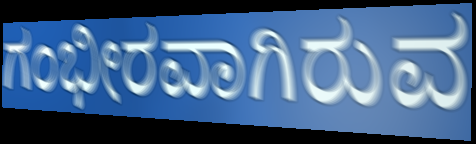
ಗಂಭೀರವಾಗಿರುವ